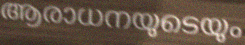
ആരാധനയുടെയും